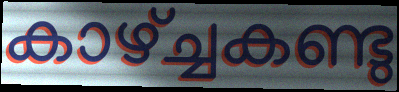
കാഴ്ച്ചകണ്ടു